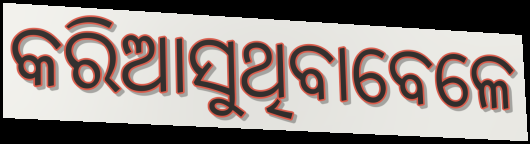
କରିଆସୁଥିବାବେଳେ